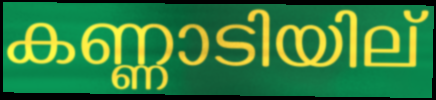
കണ്ണാടിയില്